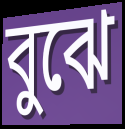
বুঝে